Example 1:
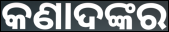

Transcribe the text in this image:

କଣାଦଙ୍କର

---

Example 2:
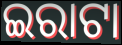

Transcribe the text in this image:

ଇରାଟା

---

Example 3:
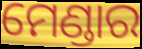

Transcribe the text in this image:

ମେଣ୍ଡାର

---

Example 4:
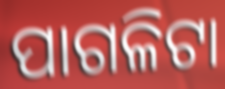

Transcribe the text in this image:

ପାଗଳିଟା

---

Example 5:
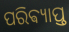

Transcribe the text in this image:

ପରିଵ୍ୟାପ୍ତ